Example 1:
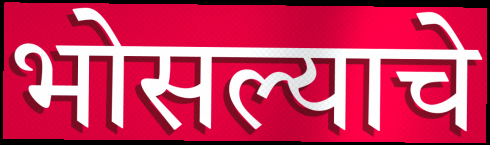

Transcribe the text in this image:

भोसल्याचे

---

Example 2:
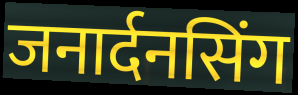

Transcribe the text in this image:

जनार्दनसिंग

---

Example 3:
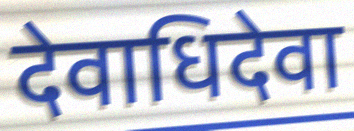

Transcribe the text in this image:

देवाधिदेवा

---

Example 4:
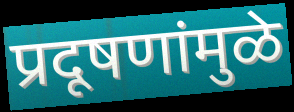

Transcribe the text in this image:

प्रदूषणांमुळे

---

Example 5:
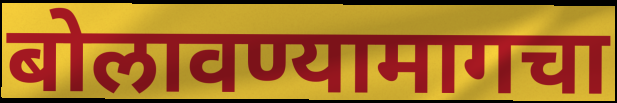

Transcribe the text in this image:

बोलावण्यामागचा